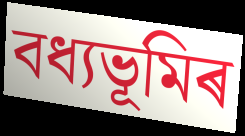
বধ্যভূমিৰ